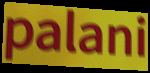
palani